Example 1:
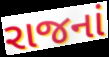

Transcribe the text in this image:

રાજનાં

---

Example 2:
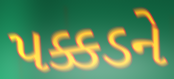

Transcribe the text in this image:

પક્કડને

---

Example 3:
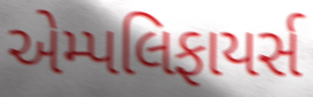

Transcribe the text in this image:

એમ્પલિફાયર્સ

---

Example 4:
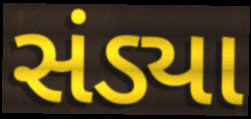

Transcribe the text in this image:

સંડ્યા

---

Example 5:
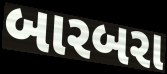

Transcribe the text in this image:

બારબરા